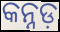
କନ୍ନଡ଼